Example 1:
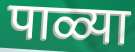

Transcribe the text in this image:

पाळ्या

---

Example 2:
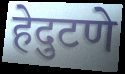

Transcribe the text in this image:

हेदुटणे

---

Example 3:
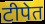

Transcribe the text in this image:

टीपेत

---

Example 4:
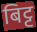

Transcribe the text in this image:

बिट्ट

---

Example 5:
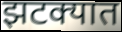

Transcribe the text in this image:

झटक्‍यात